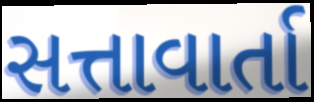
સત્તાવાર્તા